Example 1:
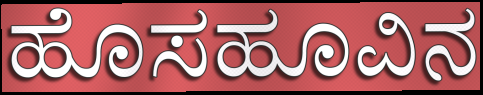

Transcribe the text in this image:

ಹೊಸಹೂವಿನ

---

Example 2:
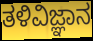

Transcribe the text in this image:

ತಳಿವಿಜ್ಞಾನ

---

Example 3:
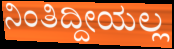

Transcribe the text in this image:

ನಿಂತಿದ್ದೀಯಲ್ಲ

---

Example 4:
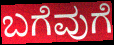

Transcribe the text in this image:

ಬಗೆವುಗೆ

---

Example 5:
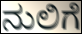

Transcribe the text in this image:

ನುಲಿಗೆ